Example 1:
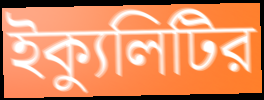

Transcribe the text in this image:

ইক্যুলিটির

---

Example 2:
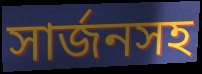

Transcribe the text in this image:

সার্জনসহ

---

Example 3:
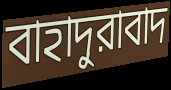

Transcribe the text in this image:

বাহাদুরাবাদ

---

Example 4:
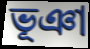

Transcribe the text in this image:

ভূঞা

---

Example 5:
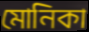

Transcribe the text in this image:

মোনিকা